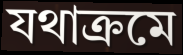
যথাক্রমে